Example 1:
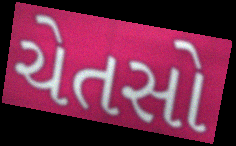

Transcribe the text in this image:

ચેતસો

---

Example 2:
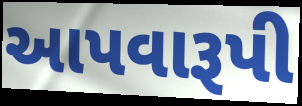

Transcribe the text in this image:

આપવારૂપી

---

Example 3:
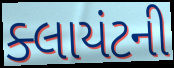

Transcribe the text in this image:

ક્લાયંટની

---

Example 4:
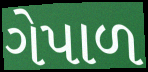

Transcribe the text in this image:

ગેપાળ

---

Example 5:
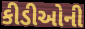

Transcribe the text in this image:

કીડીઓની